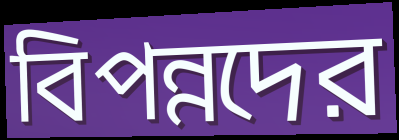
বিপন্নদের